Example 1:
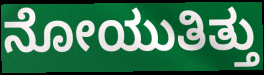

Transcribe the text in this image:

ನೋಯುತಿತ್ತು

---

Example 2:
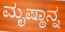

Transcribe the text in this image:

ಮೃಷ್ಠಾನ್ನ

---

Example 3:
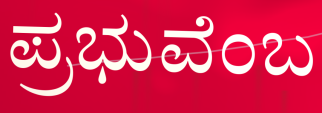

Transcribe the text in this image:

ಪ್ರಭುವೆಂಬ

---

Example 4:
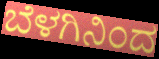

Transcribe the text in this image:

ಬೆಳಗಿನಿಂದ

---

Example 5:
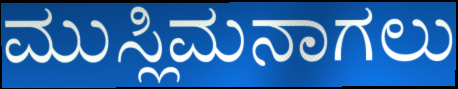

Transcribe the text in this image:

ಮುಸ್ಲಿಮನಾಗಲು